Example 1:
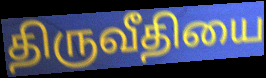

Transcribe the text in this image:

திருவீதியை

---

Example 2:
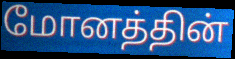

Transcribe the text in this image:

மோனத்தின்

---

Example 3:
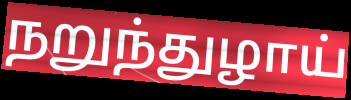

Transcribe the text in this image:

நறுந்துழாய்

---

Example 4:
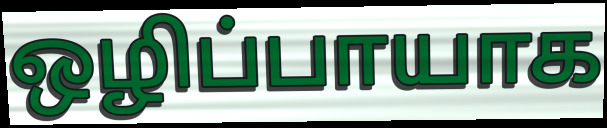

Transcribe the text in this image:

ஒழிப்பாயாக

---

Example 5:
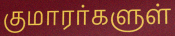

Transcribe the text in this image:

குமாரர்களுள்